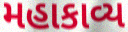
મહાકાવ્ય